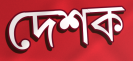
দেশক